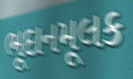
ભૂદાનમૂલક